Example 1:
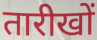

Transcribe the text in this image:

तारीखों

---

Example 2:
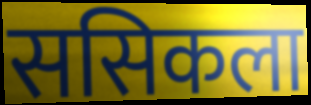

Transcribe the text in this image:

ससिकला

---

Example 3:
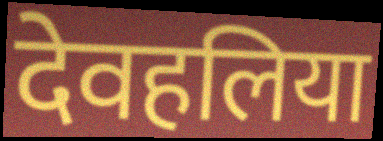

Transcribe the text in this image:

देवहलिया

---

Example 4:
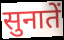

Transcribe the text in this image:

सुनातें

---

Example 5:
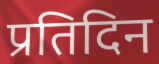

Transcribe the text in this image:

प्रतिदिन